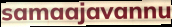
samaajavannu